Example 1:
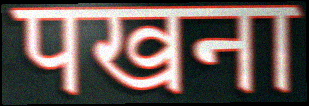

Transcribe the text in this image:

पखना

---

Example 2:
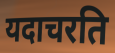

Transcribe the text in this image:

यदाचरति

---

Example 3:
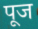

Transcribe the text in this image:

पूज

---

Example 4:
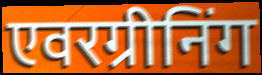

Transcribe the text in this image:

एवरग्रीनिंग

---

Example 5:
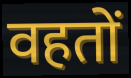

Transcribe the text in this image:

वहतों